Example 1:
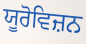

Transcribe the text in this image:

ਯੂਰੋਵਿਜ਼ਨ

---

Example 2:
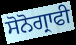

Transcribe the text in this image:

ਸੋਨੋਗ੍ਰਾਫੀ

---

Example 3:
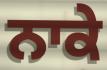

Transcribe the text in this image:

ਨਾਕੇ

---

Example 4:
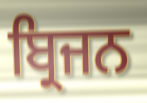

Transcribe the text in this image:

ਬ੍ਰਿਜਨ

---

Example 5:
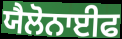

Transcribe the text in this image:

ਯੈਲੋਨਾਈਫ